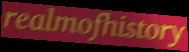
realmofhistory